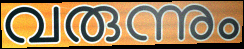
വരുന്നും